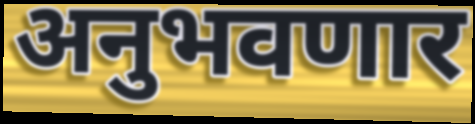
अनुभवणार